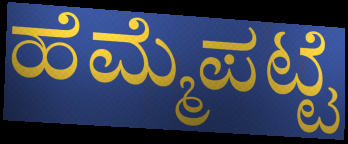
ಹೆಮ್ಮೆಪಟ್ಟೆ